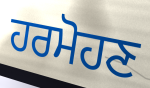
ਹਰਮੋਹਣ